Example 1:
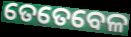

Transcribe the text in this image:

ତେତେବେଳ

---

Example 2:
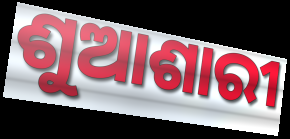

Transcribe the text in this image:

ଶୁଆଶାରୀ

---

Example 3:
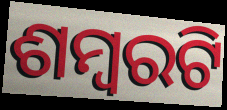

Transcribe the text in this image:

ଶମ୍ବରଟି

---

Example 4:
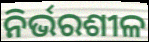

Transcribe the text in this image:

ନିର୍ଭରଶୀଳ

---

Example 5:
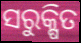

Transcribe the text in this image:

ସରୁକ୍ଷିତ